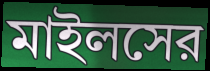
মাইলসের